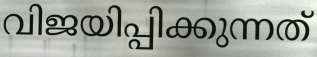
വിജയിപ്പിക്കുന്നത്